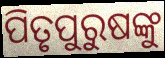
ପିତୃପୁରୁଷଙ୍କୁ